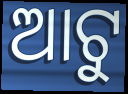
ଆଟୁ